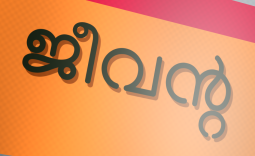
ജീവന്റ